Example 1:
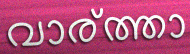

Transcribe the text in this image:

വാര്ത്താ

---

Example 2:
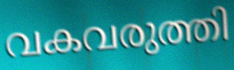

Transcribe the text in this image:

വകവരുത്തി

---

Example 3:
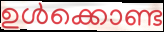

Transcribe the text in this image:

ഉൾക്കൊണ്ട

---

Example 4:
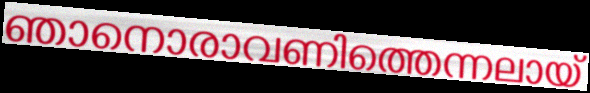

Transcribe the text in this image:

ഞാനൊരാവണിത്തെന്നലായ്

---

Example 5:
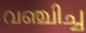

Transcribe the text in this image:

വഞ്ചിച്ച